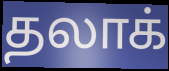
தலாக்